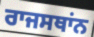
ਰਾਜਸਥਾਂਨ